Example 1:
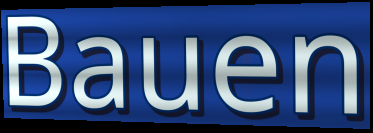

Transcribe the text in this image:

Bauen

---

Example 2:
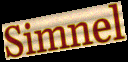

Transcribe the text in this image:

Simnel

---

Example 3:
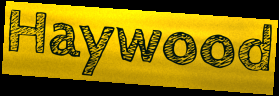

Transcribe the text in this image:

Haywood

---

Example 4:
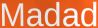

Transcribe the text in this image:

Madad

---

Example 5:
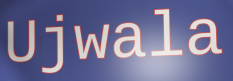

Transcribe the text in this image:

Ujwala